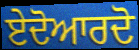
ਏਦੋਆਰਦੋ